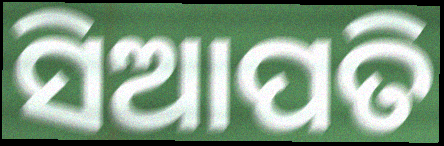
ସିଆପତି